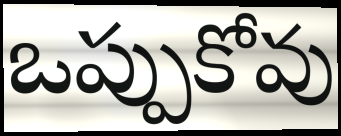
ఒప్పుకోవు